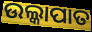
ଉଲ୍କାପାତ